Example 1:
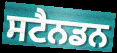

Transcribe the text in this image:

ਸਟੈਨਡਨ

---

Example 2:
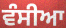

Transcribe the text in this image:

ਵੰਸੀਆ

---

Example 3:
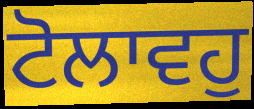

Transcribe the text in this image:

ਟੋਲਾਵਹੁ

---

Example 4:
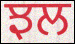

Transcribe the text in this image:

ਝਲ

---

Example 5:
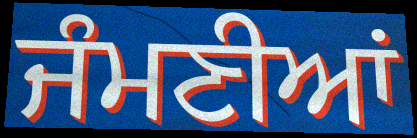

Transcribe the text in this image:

ਜੰਮਣੀਆਂ